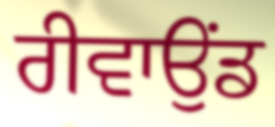
ਰੀਵਾਉਂਡ